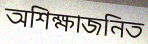
অশিক্ষাজনিত